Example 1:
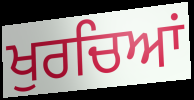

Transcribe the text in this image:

ਖੁਰਚਿਆਂ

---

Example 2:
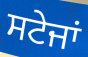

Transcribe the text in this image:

ਸਟੇਜਾਂ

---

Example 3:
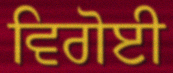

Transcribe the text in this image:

ਵਿਗੋਈ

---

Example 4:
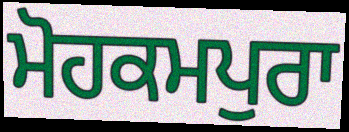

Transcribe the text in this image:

ਮੋਹਕਮਪੁਰਾ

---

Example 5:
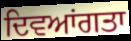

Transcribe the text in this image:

ਦਿਵਆਂਗਤਾ